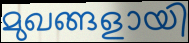
മുഖങ്ങളായി